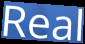
Real